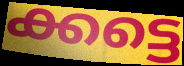
ക്കട്ടെ